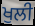
ਖੁਲੀ